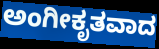
ಅಂಗೀಕೃತವಾದ